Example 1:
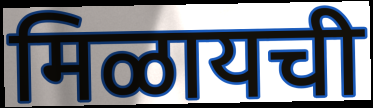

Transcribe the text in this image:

मिळायची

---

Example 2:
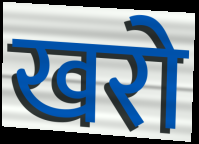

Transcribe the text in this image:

खरो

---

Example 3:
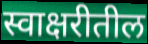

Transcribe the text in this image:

स्वाक्षरीतील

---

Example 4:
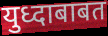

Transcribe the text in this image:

युध्दाबाबत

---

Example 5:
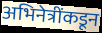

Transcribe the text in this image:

अभिनेत्रींकडून